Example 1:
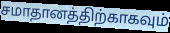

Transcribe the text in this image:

சமாதானத்திற்காகவும்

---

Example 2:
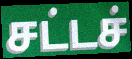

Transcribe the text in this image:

சட்டச்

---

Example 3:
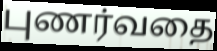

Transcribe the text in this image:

புணர்வதை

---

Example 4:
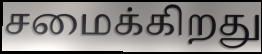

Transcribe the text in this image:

சமைக்கிறது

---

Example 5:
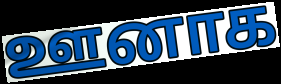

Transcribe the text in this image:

ஊனாக